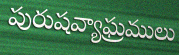
పురుషవ్యాఘ్రములు